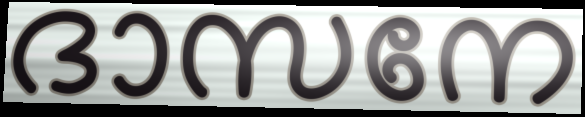
ദാസനേ